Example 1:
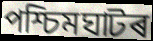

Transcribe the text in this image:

পশ্চিমঘাটৰ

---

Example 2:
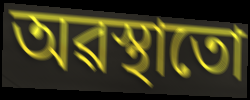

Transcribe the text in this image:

অৱস্থাতো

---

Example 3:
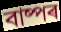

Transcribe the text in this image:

বাষ্পৰ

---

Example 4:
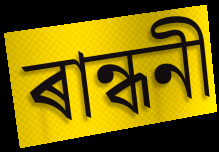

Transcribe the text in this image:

ৰান্ধনী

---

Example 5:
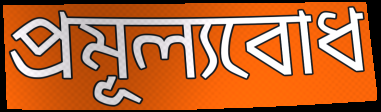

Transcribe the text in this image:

প্ৰমূল্যবোধ